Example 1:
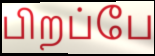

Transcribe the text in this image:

பிறப்பே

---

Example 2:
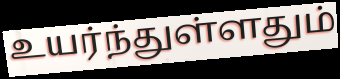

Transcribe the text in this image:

உயர்ந்துள்ளதும்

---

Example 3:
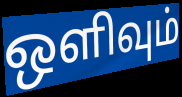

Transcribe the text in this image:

ஒளிவும்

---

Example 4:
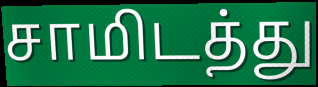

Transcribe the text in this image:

சாமிடத்து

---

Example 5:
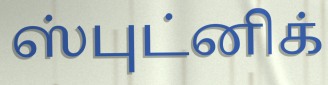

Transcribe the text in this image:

ஸ்புட்னிக்